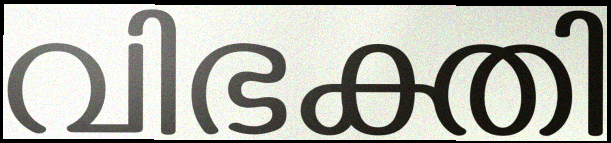
വിഭക്തി